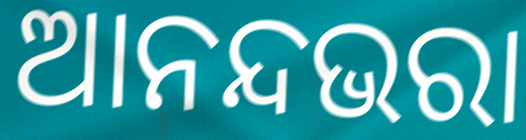
ଆନନ୍ଦଭରା